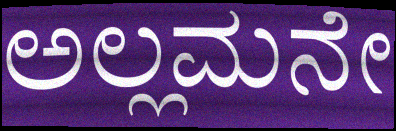
ಅಲ್ಲಮನೇ